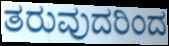
ತರುವುದರಿಂದ